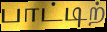
பாட்டிற்